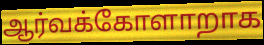
ஆர்வக்கோளாறாக